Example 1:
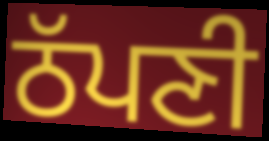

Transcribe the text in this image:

ਠੱਪਣੀ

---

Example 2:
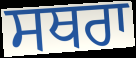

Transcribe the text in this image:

ਸਥਰਾ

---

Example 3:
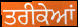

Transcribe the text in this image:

ਤਰੀਕੇਆਂ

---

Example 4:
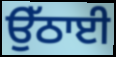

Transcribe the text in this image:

ਉੱਠਾਈ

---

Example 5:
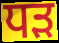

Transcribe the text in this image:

ਧੜ